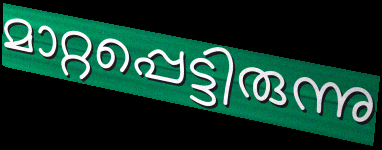
മാറ്റപ്പെട്ടിരുന്നു